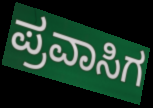
ಪ್ರವಾಸಿಗ